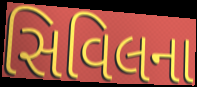
સિવિલના